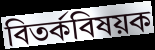
বিতর্কবিষয়ক